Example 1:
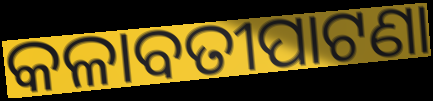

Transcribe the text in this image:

କଳାବତୀପାଟଣା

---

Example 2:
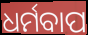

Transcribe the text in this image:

ଧର୍ମବାପ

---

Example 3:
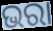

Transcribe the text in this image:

ଭରା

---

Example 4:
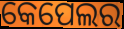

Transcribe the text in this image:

କେପେଲର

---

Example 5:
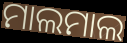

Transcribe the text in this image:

ମାଲମାଲ